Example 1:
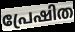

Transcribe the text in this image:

പ്രേഷിത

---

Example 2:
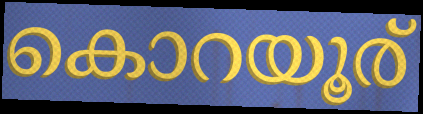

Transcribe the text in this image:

കൊറയൂര്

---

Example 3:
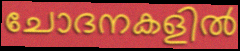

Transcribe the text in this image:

ചോദനകളിൽ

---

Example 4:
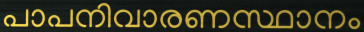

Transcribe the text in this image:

പാപനിവാരണസ്ഥാനം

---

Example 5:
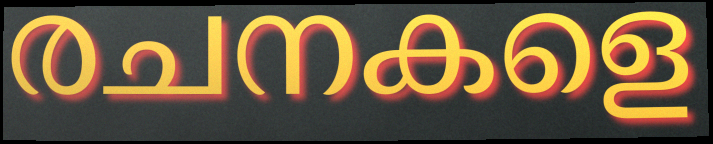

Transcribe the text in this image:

രചനകളെ